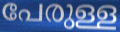
പേരുള്ള